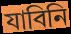
যাবিনি